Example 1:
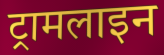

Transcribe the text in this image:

ट्रामलाइन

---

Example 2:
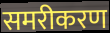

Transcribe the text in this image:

समरीकरण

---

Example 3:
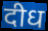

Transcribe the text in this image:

दीध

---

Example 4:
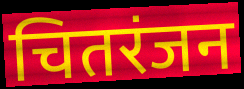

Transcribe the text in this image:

चितरंजन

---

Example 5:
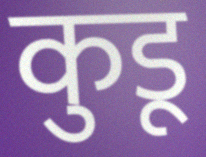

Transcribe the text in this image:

कुडू